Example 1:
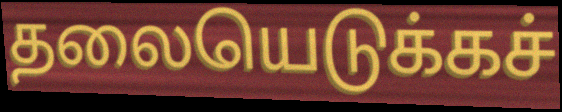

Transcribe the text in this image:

தலையெடுக்கச்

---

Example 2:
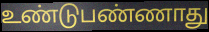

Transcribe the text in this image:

உண்டுபண்ணாது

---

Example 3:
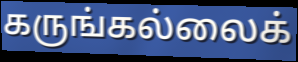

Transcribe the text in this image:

கருங்கல்லைக்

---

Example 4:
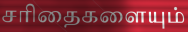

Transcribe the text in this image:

சரிதைகளையும்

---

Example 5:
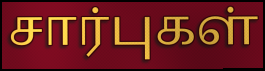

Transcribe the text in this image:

சார்புகள்